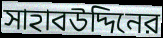
সাহাবউদ্দিনের